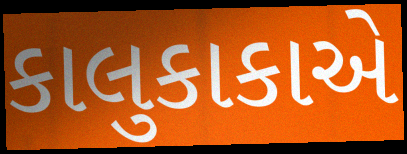
કાલુકાકાએ